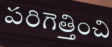
పరిగెత్తించి